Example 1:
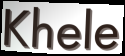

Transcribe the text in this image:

Khele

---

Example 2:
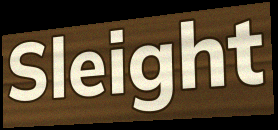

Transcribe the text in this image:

Sleight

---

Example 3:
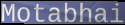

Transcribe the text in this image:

Motabhai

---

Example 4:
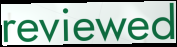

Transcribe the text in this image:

reviewed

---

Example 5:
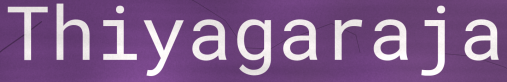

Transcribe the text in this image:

Thiyagaraja